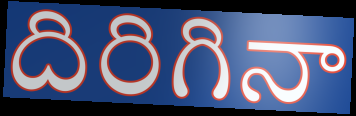
దిరిగినా